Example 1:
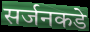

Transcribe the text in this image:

सर्जनकडे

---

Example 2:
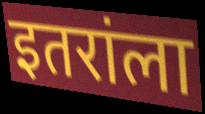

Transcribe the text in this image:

इतरांला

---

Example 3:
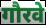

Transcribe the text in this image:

गौरवे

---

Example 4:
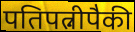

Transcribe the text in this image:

पतिपत्नीपैकी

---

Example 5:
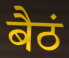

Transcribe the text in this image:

बैठं